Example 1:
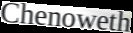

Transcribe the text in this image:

Chenoweth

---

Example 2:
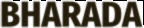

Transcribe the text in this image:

BHARADA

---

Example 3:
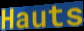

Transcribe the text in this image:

Hauts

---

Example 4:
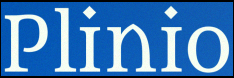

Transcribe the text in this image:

Plinio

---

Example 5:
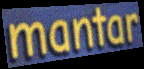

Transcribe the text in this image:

mantar